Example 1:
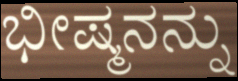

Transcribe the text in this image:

ಭೀಷ್ಮನನ್ನು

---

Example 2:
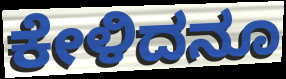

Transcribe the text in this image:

ಕೇಳಿದನೂ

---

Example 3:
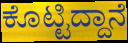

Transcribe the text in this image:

ಕೊಟ್ಟಿದ್ದಾನೆ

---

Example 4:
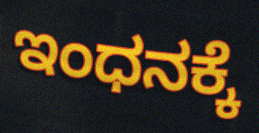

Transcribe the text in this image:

ಇಂಧನಕ್ಕೆ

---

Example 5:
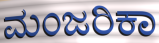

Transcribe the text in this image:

ಮಂಜರಿಕಾ